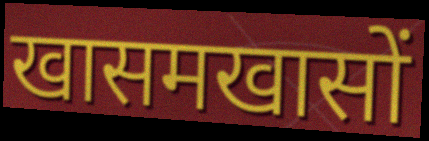
खासमखासों